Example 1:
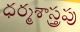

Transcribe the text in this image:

ధర్మశాస్త్రపు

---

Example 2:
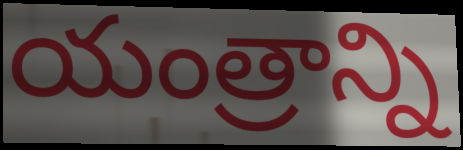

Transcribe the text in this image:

యంత్రాన్ని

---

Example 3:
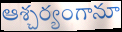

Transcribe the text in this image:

ఆశ్చర్యంగానూ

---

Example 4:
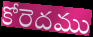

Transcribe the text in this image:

కోరెదము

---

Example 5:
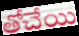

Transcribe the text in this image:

తోచేయి